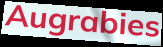
Augrabies